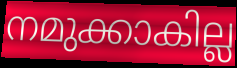
നമുക്കാകില്ല